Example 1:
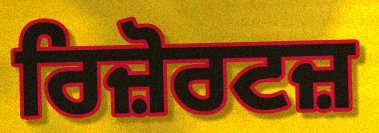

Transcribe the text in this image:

ਰਿਜ਼ੋਰਟਜ਼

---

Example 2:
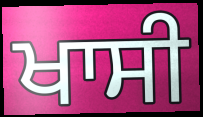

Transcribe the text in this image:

ਖਾਸੀ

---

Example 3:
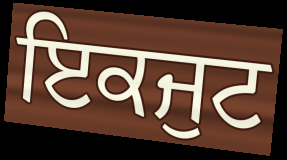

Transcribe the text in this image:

ਇਕਜੁਟ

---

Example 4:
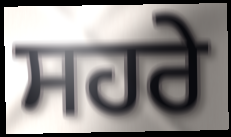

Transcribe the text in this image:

ਸਹਰੇ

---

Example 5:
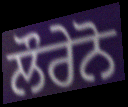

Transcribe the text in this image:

ਲੌਰੇਨੋ